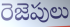
రెజెపులు